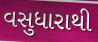
વસુધારાથી